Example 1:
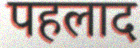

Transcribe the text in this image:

पहलाद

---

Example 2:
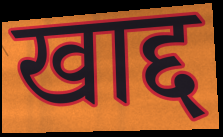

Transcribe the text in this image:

खाद्द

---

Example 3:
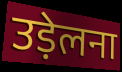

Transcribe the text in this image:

उड़ेलना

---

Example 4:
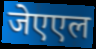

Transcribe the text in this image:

जेएएल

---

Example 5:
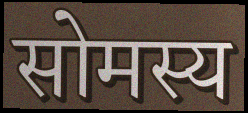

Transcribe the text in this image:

सोमस्य